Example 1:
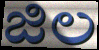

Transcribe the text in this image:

జిల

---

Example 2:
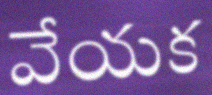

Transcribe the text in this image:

వేయక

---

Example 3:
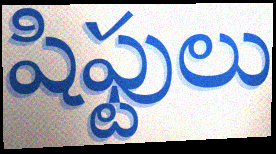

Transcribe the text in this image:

షిఫ్టులు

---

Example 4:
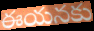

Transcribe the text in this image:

ఈయనకు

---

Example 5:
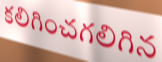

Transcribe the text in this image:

కలిగించగలిగిన